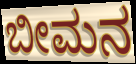
ಬೀಮನ